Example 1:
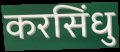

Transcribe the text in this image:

करसिंधु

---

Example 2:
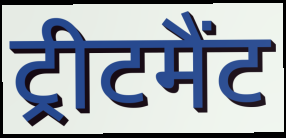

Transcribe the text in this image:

ट्रीटमैंट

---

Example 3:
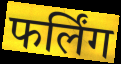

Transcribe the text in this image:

फर्लिंग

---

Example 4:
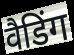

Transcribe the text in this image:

वैडिंग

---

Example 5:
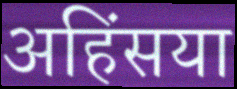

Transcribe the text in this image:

अहिंसया